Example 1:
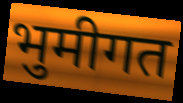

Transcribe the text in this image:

भुमीगत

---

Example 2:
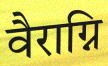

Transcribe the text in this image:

वैराग्नि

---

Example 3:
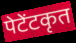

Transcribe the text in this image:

पेटेंटकृत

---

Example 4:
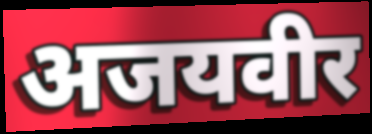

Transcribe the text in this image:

अजयवीर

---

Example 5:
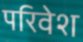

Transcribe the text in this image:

परिवेश